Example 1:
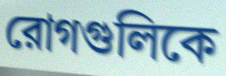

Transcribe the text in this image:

রোগগুলিকে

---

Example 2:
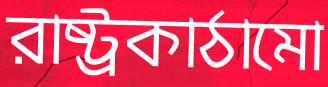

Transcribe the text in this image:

রাষ্ট্রকাঠামো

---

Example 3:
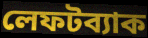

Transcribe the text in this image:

লেফটব্যাক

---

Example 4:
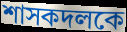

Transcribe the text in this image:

শাসকদলকে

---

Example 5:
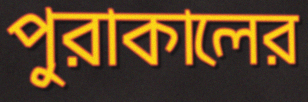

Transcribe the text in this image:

পুরাকালের